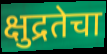
क्षुद्रतेचा